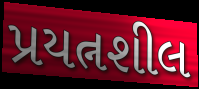
પ્રયત્નશીલ